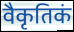
वैकृतिकं